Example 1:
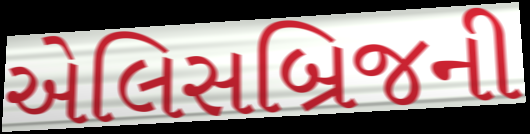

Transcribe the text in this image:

એલિસબ્રિજની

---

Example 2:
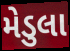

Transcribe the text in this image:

મેડુલા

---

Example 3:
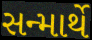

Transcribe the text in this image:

સન્માર્થે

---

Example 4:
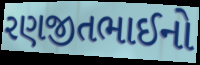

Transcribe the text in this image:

રણજીતભાઈનો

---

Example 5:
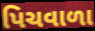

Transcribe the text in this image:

પિચવાળા